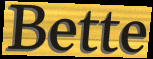
Bette